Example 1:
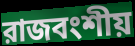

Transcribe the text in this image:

রাজবংশীয়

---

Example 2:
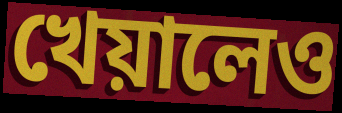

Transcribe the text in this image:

খেয়ালেও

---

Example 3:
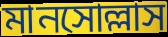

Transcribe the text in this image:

মানসোল্লাস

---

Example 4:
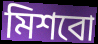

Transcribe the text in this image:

মিশবো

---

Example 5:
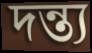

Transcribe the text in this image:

দন্ত্য